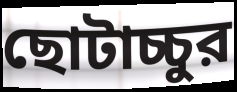
ছোটাচ্চুর